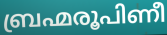
ബ്രഹ്മരൂപിണീ